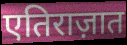
एतिराज़ात